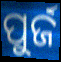
ପୁର୍ଜ